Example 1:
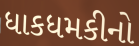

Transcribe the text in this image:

ધાકધમકીનો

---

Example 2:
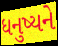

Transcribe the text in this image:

ધનુષ્યને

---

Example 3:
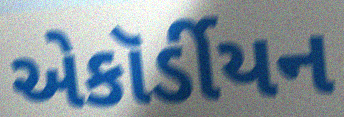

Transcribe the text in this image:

એકૉર્ડીયન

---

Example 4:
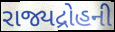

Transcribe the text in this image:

રાજ્યદ્રોહની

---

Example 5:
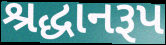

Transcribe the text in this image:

શ્રદ્ધાનરૂપ